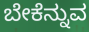
ಬೇಕೆನ್ನುವ